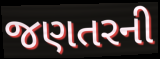
જણતરની